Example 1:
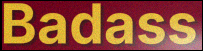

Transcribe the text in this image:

Badass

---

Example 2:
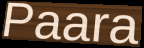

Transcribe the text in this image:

Paara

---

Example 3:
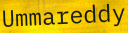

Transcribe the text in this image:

Ummareddy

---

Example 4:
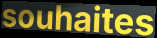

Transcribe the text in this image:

souhaites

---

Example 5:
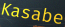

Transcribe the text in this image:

Kasabe